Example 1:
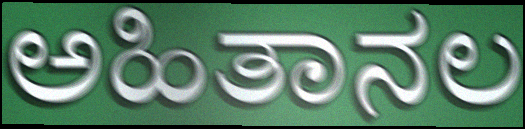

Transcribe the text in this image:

ಅಹಿತಾನಲ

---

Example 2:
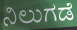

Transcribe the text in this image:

ನಿಲುಗಡೆ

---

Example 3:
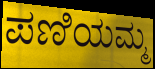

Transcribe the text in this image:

ಪಣಿಯಮ್ಮ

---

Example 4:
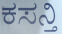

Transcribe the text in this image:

ಕಸನ್ತಿ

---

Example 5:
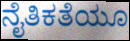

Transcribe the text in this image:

ನೈತಿಕತೆಯೂ